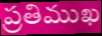
ప్రతిముఖ